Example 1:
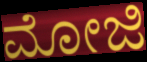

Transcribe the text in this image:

ಮೋಜಿ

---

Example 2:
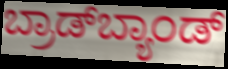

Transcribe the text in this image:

ಬ್ರಾಡ್‌ಬ್ಯಾಂಡ್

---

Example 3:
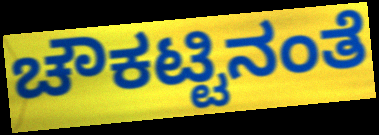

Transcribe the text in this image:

ಚೌಕಟ್ಟಿನಂತೆ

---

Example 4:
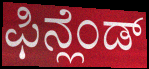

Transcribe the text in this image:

ಫಿನ್ಲೆಂಡ್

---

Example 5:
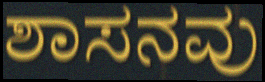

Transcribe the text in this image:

ಶಾಸನವು